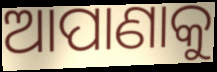
ଆପାଣାକୁ